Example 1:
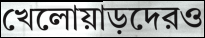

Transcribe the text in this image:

খেলোয়াড়দেরও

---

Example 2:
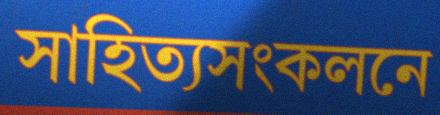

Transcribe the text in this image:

সাহিত্যসংকলনে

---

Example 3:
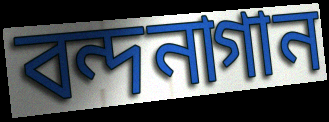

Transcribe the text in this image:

বন্দনাগান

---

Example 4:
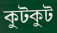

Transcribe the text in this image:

কুটকুট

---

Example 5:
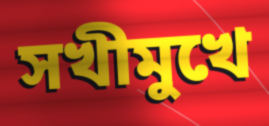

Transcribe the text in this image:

সখীমুখে